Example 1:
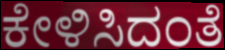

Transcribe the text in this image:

ಕೇಳಿಸಿದಂತೆ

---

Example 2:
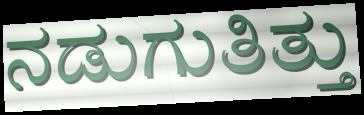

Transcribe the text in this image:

ನಡುಗುತಿತ್ತು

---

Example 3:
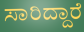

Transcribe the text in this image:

ಸಾರಿದ್ದಾರೆ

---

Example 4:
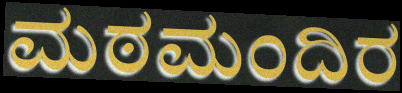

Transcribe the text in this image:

ಮಠಮಂದಿರ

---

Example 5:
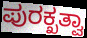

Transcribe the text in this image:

ಪುರಕ್ಖತ್ವಾ